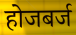
होजबर्ज